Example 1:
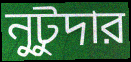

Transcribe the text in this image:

নুটুদার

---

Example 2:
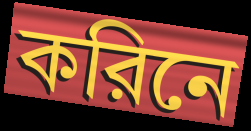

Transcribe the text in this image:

করিনে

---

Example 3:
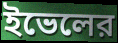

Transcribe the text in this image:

ইভেলের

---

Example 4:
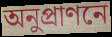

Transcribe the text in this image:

অনুপ্রাণনে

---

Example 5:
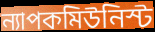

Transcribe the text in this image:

ন্যাপকমিউনিস্ট